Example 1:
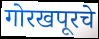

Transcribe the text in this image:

गोरखपूरचे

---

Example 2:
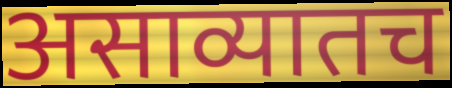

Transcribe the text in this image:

असाव्यातच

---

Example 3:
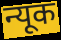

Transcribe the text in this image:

न्यूक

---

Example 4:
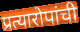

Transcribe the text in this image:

प्रत्यारोपांची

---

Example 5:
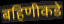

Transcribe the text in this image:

बहिणीकडे